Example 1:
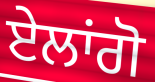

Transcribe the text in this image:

ਏਲਾਂਗੋ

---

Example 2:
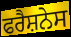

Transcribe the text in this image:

ਫਰੈਸ਼ਨੇਸ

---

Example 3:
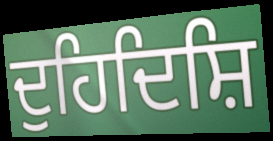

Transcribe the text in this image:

ਦੁਹਿਦਿਸ਼ਿ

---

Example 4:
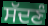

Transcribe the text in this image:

ਸੱਦਣੰ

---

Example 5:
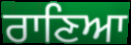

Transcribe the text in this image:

ਰਾਣਿਆ